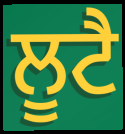
ਲੂਟੈ